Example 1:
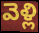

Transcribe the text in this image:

వెళ్లి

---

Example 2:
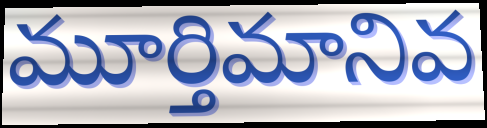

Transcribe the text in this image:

మూర్తిమానివ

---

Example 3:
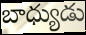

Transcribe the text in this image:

బాధ్యుడు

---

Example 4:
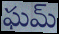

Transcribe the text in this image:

ఘమ్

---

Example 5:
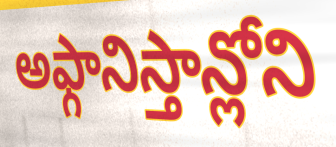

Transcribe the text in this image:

అఫ్గానిస్తాన్లోని